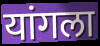
यांगला